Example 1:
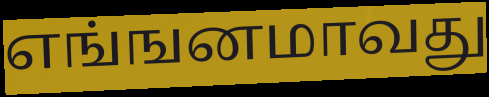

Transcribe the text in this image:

எங்ஙனமாவது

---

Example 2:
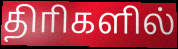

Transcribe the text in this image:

திரிகளில்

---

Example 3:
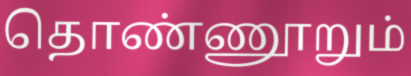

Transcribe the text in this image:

தொண்ணூறும்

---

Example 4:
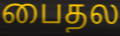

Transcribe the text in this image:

பைதல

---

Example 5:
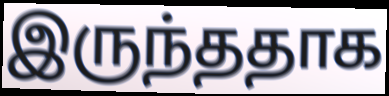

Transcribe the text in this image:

இருந்ததாக